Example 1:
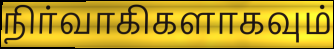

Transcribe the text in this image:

நிர்வாகிகளாகவும்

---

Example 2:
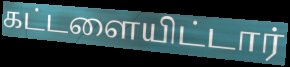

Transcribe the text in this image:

கட்டளையிட்டார்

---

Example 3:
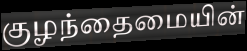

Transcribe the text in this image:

குழந்தைமையின்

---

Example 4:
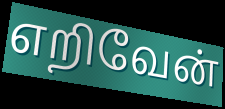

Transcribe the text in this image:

எறிவேன்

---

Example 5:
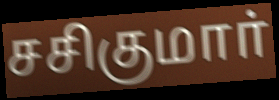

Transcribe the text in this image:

சசிகுமார்